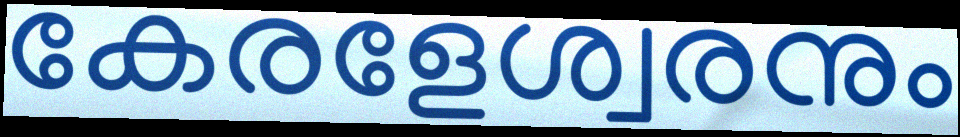
കേരളേശ്വരനും